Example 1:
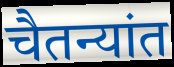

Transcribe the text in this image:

चैतन्यांत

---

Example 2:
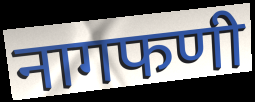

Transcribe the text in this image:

नागफणी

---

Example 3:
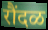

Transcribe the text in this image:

रौंदळ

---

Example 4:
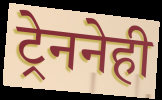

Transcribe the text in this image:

ट्रेननेही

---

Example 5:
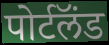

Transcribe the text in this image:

पोर्टलॅंड